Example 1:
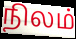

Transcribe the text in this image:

நிலம்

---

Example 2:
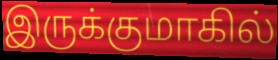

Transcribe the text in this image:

இருக்குமாகில்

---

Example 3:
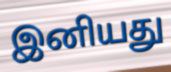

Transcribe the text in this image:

இனியது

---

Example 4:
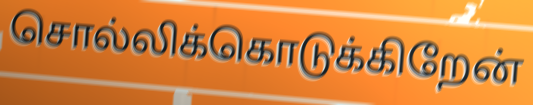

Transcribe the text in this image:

சொல்லிக்கொடுக்கிறேன்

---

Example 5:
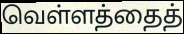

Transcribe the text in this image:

வெள்ளத்தைத்